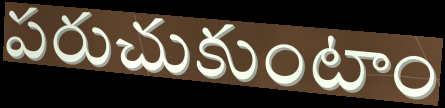
పరుచుకుంటాం